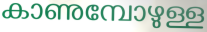
കാണുമ്പോഴുള്ള